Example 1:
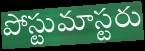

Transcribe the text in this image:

పోస్టుమాస్టరు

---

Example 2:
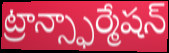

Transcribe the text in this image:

ట్రాన్స్ఫార్మేషన్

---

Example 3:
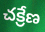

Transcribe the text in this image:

చక్రేణ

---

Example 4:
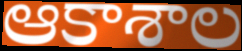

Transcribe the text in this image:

ఆకాశాల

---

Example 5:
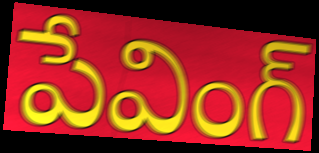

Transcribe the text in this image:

పేవింగ్